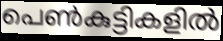
പെൺകുട്ടികളിൽ